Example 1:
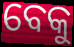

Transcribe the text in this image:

ବେକୁ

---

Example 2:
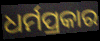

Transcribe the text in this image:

ଧର୍ମପ୍ରକାର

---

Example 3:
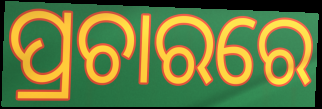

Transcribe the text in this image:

ପ୍ରଚାରରେ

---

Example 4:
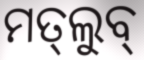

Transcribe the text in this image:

ମତ୍‌ଲୁବ୍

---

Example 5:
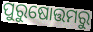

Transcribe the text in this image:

ପୁରୁଷୋତ୍ତମରୁ